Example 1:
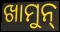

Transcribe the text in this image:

ଖାମୁନ୍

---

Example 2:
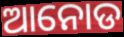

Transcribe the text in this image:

ଆନୋଡ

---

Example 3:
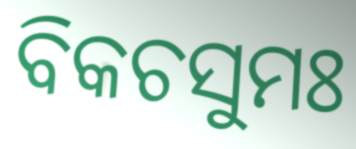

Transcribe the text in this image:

ବିକଚସୁମଃ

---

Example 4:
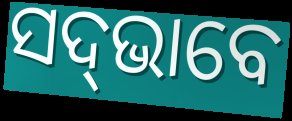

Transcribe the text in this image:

ସଦ୍‌ଭାବେ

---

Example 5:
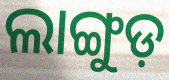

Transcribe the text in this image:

ଲାଙ୍ଗୁଡ଼